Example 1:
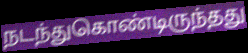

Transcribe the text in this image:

நடந்துகொண்டிருந்தது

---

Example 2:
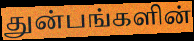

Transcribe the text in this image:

துன்பங்களின்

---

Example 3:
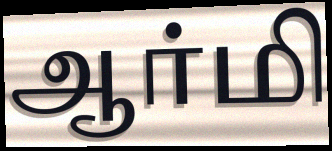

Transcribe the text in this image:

ஆர்மி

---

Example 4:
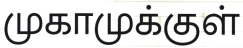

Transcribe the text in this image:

முகாமுக்குள்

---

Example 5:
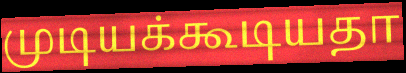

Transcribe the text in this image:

முடியக்கூடியதா